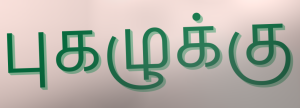
புகழுக்கு